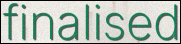
finalised